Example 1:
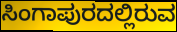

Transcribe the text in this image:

ಸಿಂಗಾಪುರದಲ್ಲಿರುವ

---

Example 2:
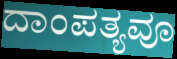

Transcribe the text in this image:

ದಾಂಪತ್ಯವೂ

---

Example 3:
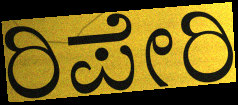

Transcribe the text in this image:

ರಿಪೇರಿ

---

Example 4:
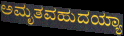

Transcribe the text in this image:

ಅಮೃತವಹುದಯ್ಯಾ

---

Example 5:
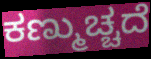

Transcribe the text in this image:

ಕಣ್ಮುಚ್ಚದೆ